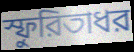
স্ফুরিতাধর